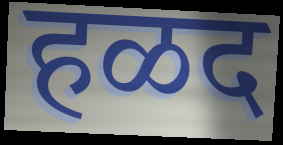
हळद